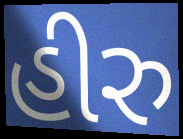
હીરુ